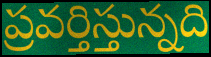
ప్రవర్తిస్తున్నది